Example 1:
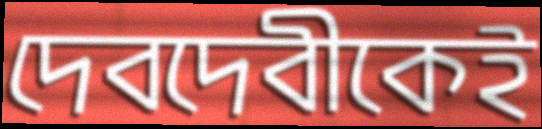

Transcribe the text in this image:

দেবদেবীকেই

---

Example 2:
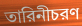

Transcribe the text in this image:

তারিনীচরণ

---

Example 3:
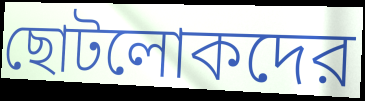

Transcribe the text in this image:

ছোটলোকদের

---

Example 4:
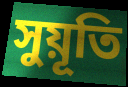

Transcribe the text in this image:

সুয়ূতি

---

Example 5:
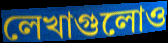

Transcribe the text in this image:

লেখাগুলোও